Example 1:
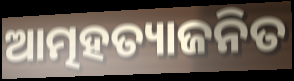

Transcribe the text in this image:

ଆତ୍ମହତ୍ୟାଜନିତ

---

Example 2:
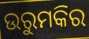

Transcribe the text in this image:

ଉରୁମକିର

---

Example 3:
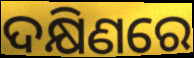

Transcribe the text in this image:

ଦକ୍ଷିଣରେ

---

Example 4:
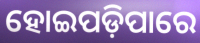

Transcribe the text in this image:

ହୋଇପଡ଼ିପାରେ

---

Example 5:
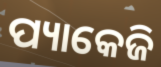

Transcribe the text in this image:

ପ୍ୟାକେଜି